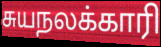
சுயநலக்காரி